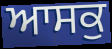
ਆਸਕੁ